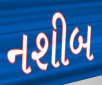
નશીબ